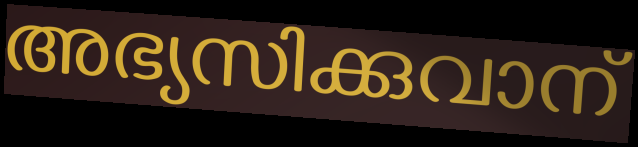
അഭ്യസിക്കുവാന്